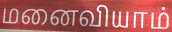
மனைவியாம்